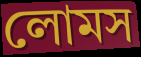
লোমস